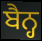
ਬੈਨ੍ਹ